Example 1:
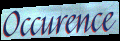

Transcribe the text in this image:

Occurence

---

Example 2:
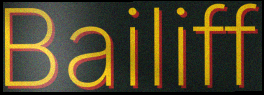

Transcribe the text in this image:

Bailiff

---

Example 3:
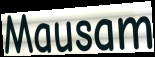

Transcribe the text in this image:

Mausam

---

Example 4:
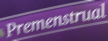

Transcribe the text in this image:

Premenstrual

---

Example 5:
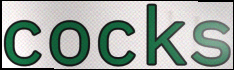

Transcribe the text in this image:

cocks